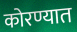
कोरण्यात